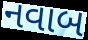
નવાબ